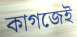
কাগজেই